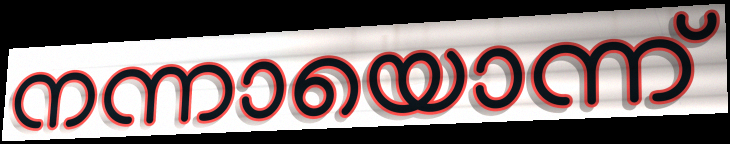
നന്നായൊന്ന്